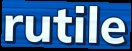
rutile